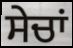
ਸੇਚਾਂ